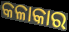
କଳାକାର